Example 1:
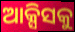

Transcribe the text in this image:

ଆକ୍ସିସକୁ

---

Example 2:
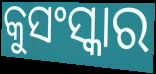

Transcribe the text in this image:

କୁସଂସ୍କାର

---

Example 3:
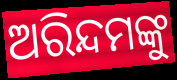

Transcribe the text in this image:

ଅରିନ୍ଦମଙ୍କୁ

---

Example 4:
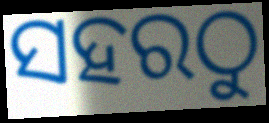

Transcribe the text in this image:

ସହରଠୁ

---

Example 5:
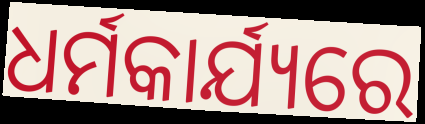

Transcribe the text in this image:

ଧର୍ମକାର୍ଯ୍ୟରେ